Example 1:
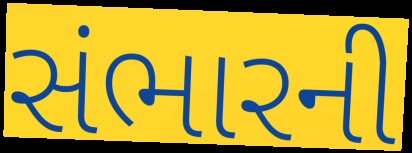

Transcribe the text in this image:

સંભારની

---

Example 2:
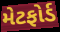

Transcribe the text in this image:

મેટફોર્ડ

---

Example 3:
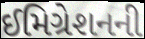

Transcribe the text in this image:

ઈમિગ્રેશનની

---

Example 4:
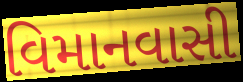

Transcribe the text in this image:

વિમાનવાસી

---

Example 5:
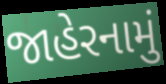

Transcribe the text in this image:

જાહેરનામું